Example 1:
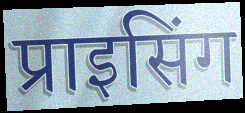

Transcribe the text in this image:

प्राइसिंग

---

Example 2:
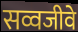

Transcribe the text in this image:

सव्वजीवे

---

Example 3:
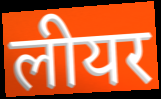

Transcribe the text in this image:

लीयर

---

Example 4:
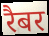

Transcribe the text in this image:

रैबर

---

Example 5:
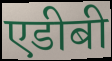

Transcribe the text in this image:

एडीबी